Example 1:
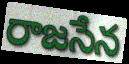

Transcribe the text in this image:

రాజసేన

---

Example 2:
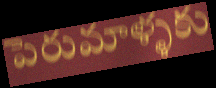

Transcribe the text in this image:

పెరుమాళ్ళకు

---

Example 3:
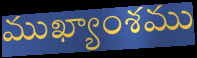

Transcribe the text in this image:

ముఖ్యాంశము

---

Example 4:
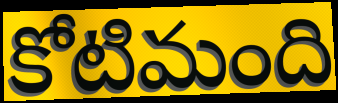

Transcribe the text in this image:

కోటిమంది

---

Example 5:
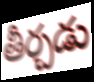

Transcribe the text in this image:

తీర్చడు